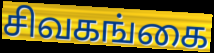
சிவகங்கை